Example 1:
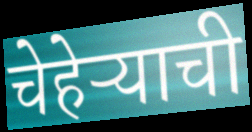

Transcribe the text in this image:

चेहेऱ्याची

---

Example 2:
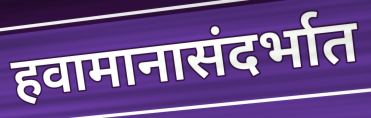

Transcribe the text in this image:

हवामानासंदर्भात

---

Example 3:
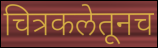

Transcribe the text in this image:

चित्रकलेतूनच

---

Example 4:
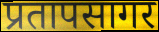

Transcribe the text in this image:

प्रतापसागर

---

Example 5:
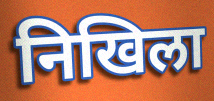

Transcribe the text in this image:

निखिला